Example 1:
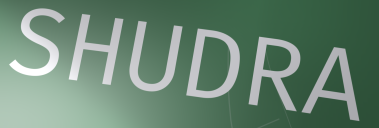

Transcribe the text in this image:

SHUDRA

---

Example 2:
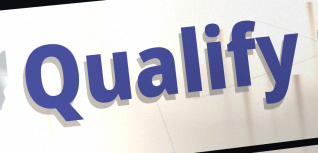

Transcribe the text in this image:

Qualify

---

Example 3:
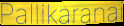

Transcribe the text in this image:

Pallikaranai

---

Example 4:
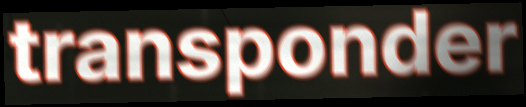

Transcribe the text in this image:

transponder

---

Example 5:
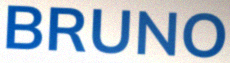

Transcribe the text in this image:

BRUNO